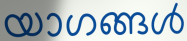
യാഗങ്ങൾ